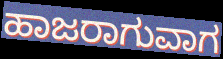
ಹಾಜರಾಗುವಾಗ